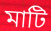
মাটি